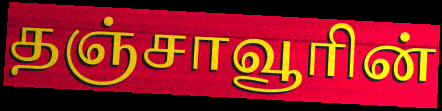
தஞ்சாவூரின்